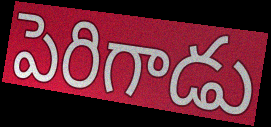
పెరిగాడు